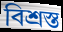
বিশ্রস্ত